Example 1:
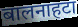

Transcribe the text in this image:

बालनाहटा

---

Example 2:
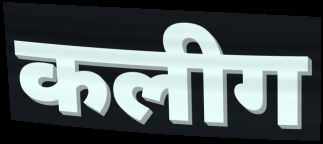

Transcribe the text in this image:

कलीग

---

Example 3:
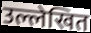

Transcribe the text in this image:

उल्लेखित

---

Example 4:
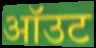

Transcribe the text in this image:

ऑउट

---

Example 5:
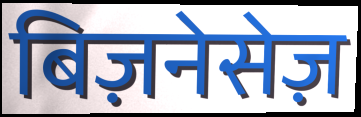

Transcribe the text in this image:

बिज़नेसेज़